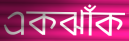
একঝাঁক